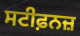
ਸਟੀਫ਼ਨਜ਼